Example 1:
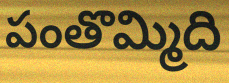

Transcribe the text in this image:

పంతొమ్మిది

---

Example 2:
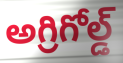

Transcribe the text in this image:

అగ్రిగోల్డ్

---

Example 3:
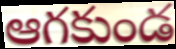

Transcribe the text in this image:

ఆగకుండ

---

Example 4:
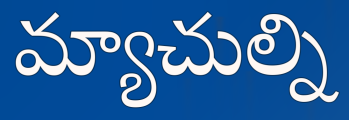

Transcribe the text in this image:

మ్యాచుల్ని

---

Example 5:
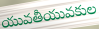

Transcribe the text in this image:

యువతీయువకుల